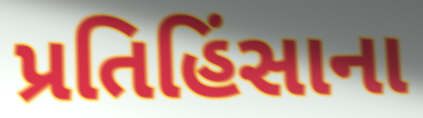
પ્રતિહિંસાના